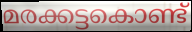
മരക്കട്ടകൊണ്ട്